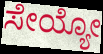
ಸೇಯ್ಯೋ